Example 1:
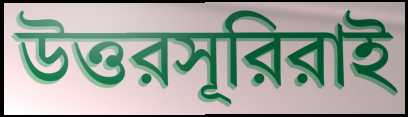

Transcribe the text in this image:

উত্তরসূরিরাই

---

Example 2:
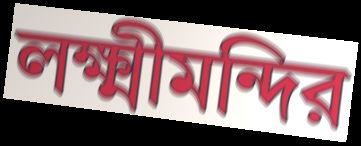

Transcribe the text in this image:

লক্ষ্মীমন্দির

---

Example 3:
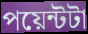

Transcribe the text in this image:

পয়েন্টটা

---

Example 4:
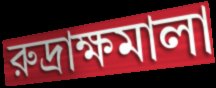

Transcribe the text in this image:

রুদ্রাক্ষমালা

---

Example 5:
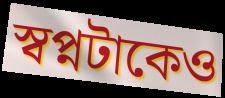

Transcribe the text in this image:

স্বপ্নটাকেও